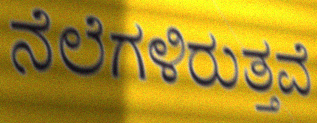
ನೆಲೆಗಳಿರುತ್ತವೆ